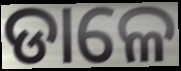
ଡାଳେ